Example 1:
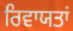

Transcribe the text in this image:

ਰਿਵਾਯਤਾਂ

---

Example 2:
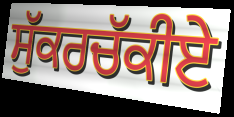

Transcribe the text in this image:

ਸੁੱਕਰਚੱਕੀਏ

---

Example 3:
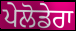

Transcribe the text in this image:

ਪੇਲੋਡੇਰਾ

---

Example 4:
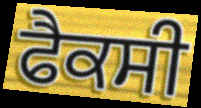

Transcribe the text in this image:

ਫੈਕਸੀ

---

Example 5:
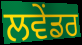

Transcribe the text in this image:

ਲਵੇਂਡਰ